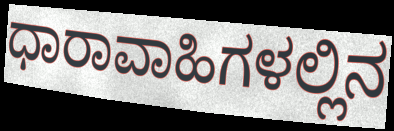
ಧಾರಾವಾಹಿಗಳಲ್ಲಿನ